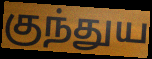
குந்துய